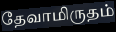
தேவாமிருதம்